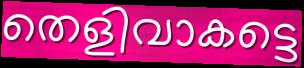
തെളിവാകട്ടെ